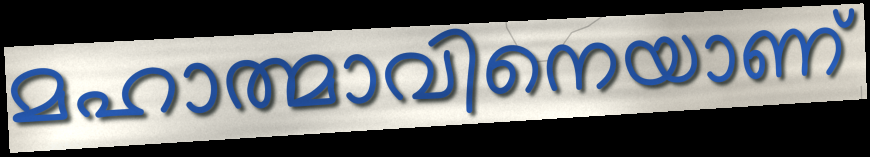
മഹാത്മാവിനെയാണ്